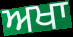
ਅਖਾ